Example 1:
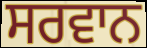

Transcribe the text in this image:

ਸਰਵਾਨ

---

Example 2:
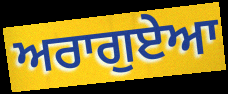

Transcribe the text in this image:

ਅਰਾਗੁਏਆ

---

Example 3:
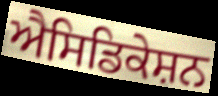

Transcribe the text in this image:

ਐਸਿਡਿਕੇਸ਼ਨ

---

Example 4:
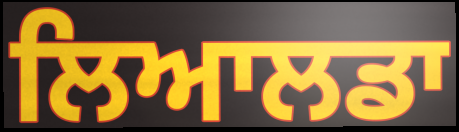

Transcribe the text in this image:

ਲਿਆਲਡਾ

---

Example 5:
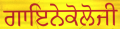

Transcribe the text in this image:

ਗਾਇਨੇਕੋਲੋਜੀ